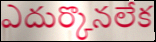
ఎదుర్కొనలేక